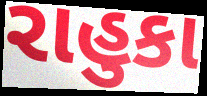
રાહુકા